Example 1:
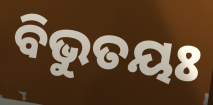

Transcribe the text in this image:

ବିଭୁତୟଃ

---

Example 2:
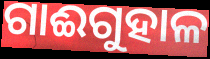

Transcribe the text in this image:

ଗାଈଗୁହାଳ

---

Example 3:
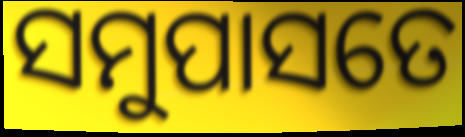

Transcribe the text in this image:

ସମୁପାସତେ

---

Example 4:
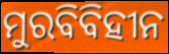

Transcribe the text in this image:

ମୁରବିବିହୀନ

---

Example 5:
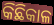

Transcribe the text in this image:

କିଛିକାଳ